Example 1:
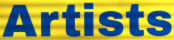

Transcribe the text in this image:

Artists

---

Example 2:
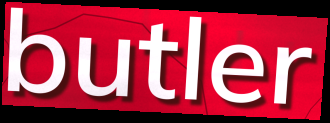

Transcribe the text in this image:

butler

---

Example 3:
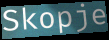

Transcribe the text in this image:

Skopje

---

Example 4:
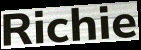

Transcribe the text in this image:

Richie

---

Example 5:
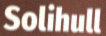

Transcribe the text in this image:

Solihull